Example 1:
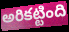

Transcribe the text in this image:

అరికట్టింది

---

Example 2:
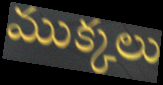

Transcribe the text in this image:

ముక్కలు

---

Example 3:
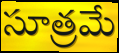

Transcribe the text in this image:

సూత్రమే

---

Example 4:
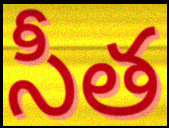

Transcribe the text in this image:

సీత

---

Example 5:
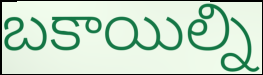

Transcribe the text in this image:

బకాయిల్ని